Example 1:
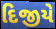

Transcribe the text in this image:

દિજીયે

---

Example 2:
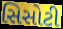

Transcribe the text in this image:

સિસોટી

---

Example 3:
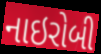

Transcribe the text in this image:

નાઇરોબી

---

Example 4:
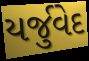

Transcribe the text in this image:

યર્જુવેદ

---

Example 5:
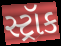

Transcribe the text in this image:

સ્ટ્રૉક